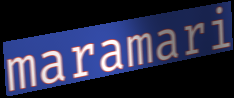
maramari